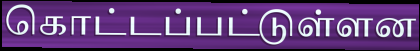
கொட்டப்பட்டுள்ளன